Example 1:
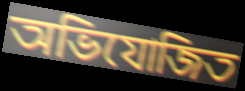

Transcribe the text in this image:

অভিযোজিত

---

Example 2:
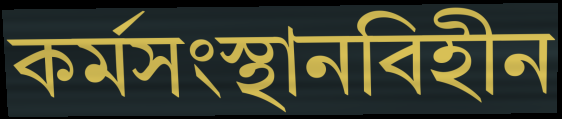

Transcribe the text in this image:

কর্মসংস্থানবিহীন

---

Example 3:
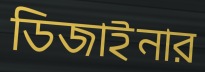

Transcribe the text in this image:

ডিজাইনার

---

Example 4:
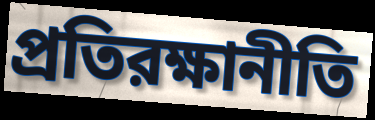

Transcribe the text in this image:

প্রতিরক্ষানীতি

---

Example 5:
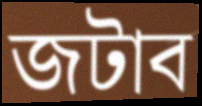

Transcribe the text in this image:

জটাব